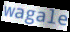
wagale